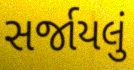
સર્જાયલું